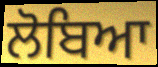
ਲੋਬਿਆ